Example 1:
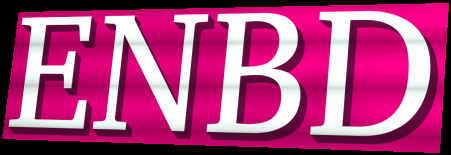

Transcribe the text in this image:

ENBD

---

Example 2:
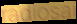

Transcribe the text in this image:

radiosai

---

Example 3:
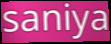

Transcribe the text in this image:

saniya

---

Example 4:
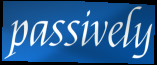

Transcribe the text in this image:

passively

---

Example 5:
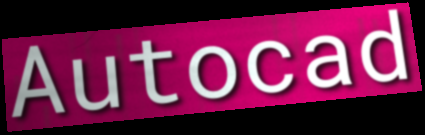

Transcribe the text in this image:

Autocad